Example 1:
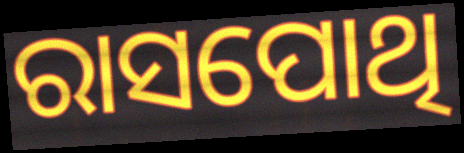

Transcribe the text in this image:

ରାସପୋଥି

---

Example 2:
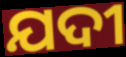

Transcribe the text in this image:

ଯଦୀ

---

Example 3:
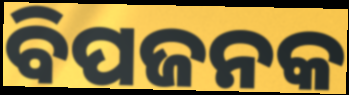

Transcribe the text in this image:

ବିପଜନକ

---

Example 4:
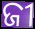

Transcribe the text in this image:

ଜୀ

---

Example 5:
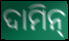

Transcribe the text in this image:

ଦାମିନ୍